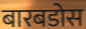
बारबडोस